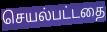
செயல்பட்டதை